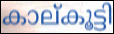
കാല്കൂട്ടി